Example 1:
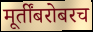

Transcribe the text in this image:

मूर्तींबरोबरच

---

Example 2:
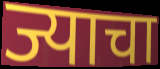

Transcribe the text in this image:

ज्याचा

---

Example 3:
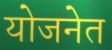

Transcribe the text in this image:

योजनेत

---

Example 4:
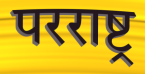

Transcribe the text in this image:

परराष्ट्र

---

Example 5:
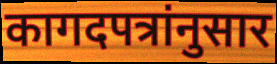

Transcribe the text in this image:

कागदपत्रांनुसार